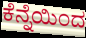
ಕೆನ್ನೆಯಿಂದ